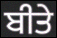
ਬੀਤੇ